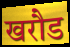
खरौड